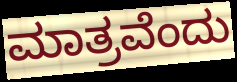
ಮಾತ್ರವೆಂದು